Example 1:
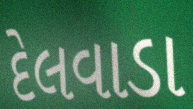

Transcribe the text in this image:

દેલવાડા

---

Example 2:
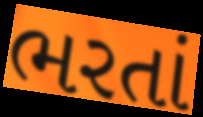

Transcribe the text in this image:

ભરતાં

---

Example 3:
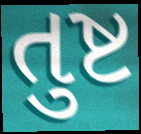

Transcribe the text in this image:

તુષ્ટ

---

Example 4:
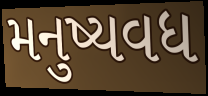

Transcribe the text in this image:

મનુષ્યવધ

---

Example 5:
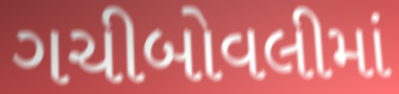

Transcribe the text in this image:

ગચીબોવલીમાં